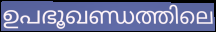
ഉപഭൂഖണ്ഡത്തിലെ